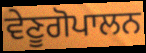
ਵੇਣੂਗੋਪਾਲਨ